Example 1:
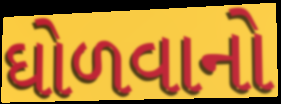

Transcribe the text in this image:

ઘોળવાનો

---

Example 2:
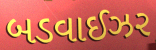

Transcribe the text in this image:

બડવાઈઝર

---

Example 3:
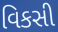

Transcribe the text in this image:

વિકસી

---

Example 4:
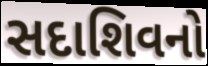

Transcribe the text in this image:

સદાશિવનો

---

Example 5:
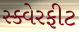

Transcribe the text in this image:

સ્ક્વેરફીટ